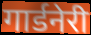
गार्डनेरी